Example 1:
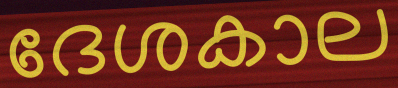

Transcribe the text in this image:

ദേശകാല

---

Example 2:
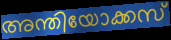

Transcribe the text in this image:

അന്തിയോക്കസ്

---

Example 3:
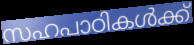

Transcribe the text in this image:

സഹപാഠികൾക്ക്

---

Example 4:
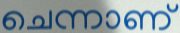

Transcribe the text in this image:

ചെന്നാണ്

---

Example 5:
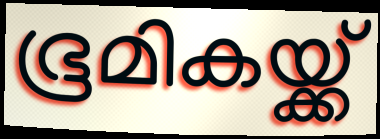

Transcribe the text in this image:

ഭൂമികയ്ക്ക്